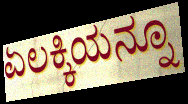
ಏಲಕ್ಕಿಯನ್ನೂ